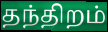
தந்திறம்